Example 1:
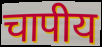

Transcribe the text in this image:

चापीय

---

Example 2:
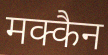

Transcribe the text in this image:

मक्कैन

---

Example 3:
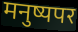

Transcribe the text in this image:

मनुष्यपर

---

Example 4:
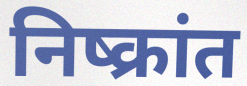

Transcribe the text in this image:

निष्क्रांत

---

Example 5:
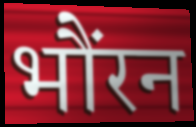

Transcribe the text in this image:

भौंरन